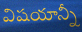
విషయాన్నీ